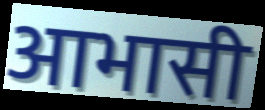
आभासी